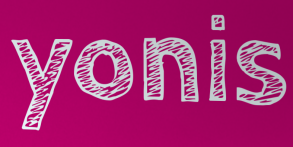
yonis